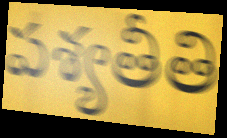
పశ్యతీతి